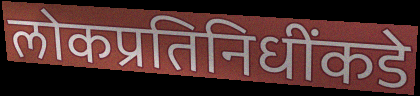
लोकप्रतिनिधींकडे